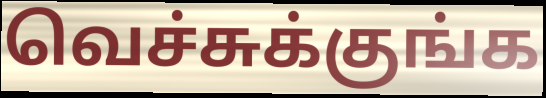
வெச்சுக்குங்க